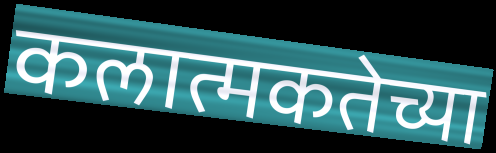
कलात्मकतेच्या